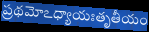
ప్రథమోఽధ్యాయఃతృతీయం